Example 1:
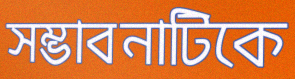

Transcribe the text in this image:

সম্ভাবনাটিকে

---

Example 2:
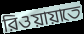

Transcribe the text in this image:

রিওয়ায়াতে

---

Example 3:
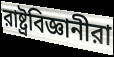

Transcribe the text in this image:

রাষ্ট্রবিজ্ঞানীরা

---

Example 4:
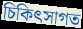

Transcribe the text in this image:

চিকিৎসাগত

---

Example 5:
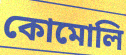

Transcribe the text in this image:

কোমোলি